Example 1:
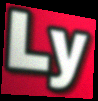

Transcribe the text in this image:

Ly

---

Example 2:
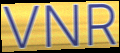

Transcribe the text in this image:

VNR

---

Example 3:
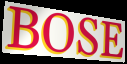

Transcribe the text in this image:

BOSE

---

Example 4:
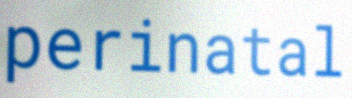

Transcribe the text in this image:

perinatal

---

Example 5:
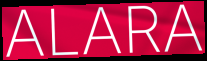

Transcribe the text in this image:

ALARA